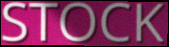
STOCK